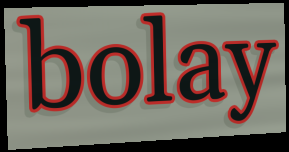
bolay